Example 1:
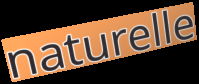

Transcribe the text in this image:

naturelle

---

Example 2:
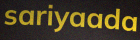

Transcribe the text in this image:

sariyaada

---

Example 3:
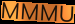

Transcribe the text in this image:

MMMU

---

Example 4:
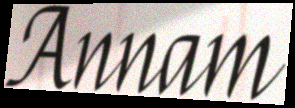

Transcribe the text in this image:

Annam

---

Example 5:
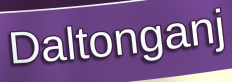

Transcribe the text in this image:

Daltonganj